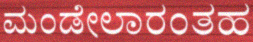
ಮಂಡೇಲಾರಂತಹ